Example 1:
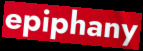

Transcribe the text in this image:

epiphany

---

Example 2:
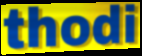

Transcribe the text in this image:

thodi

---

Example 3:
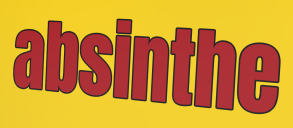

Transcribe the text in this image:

absinthe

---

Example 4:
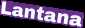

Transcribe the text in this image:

Lantana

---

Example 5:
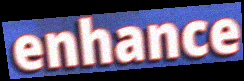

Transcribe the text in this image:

enhance